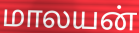
மாலயன்